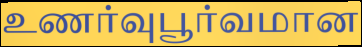
உணர்வுபூர்வமான